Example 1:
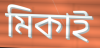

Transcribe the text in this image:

মিকাই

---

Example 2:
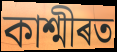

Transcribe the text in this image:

কাশ্মীৰত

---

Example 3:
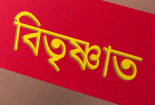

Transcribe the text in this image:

বিতৃষ্ণাত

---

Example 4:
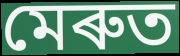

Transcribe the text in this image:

মেৰুত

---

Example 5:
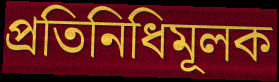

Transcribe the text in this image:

প্ৰতিনিধিমূলক